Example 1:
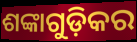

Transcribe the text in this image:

ଶଙ୍କାଗୁଡ଼ିକର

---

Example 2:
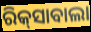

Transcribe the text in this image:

ରିକ୍‍ସାବାଲା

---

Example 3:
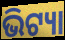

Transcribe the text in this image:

ଭିଟ୍ୟା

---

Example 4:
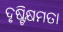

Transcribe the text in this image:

ଦୃଷ୍ଟିକ୍ଷମତା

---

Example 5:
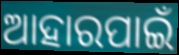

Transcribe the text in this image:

ଆହାରପାଇଁ